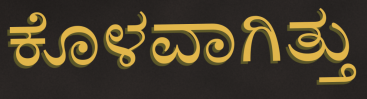
ಕೊಳವಾಗಿತ್ತು